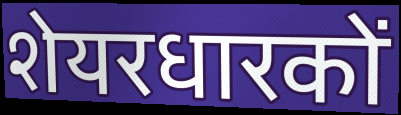
शेयरधारकों